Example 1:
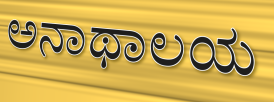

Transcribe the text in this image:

ಅನಾಥಾಲಯ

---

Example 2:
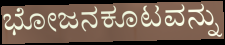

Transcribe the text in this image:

ಭೋಜನಕೂಟವನ್ನು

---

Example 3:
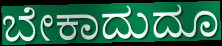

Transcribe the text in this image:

ಬೇಕಾದುದೂ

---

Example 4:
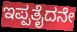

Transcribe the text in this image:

ಇಪ್ಪತೈದನೇ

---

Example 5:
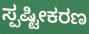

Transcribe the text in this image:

ಸ್ಪಷ್ಟೀಕರಣ